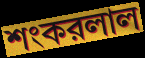
শংকরলাল